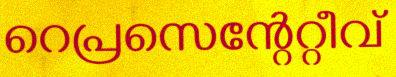
റെപ്രസെന്റേറ്റീവ്